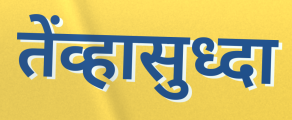
तेंव्हासुध्दा